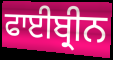
ਫਾਈਬ੍ਰੀਨ